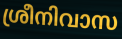
ശ്രീനിവാസ